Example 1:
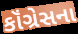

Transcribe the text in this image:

કૉંગ્રેસના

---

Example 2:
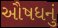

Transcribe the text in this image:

ઔષધનું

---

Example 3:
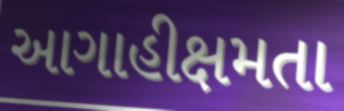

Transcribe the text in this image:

આગાહીક્ષમતા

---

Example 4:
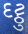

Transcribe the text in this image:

દટ્ઠુ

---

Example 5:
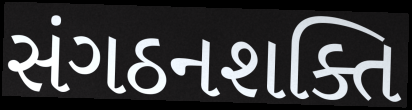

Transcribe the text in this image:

સંગઠનશક્તિ